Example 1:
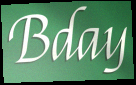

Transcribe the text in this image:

Bday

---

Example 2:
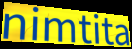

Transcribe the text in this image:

nimtita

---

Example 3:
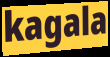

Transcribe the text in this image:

kagala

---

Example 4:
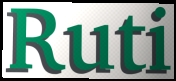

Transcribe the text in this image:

Ruti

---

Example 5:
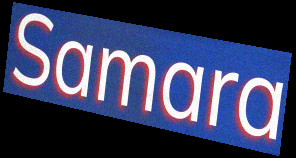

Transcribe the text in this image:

Samara